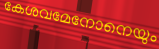
കേശവമേനോനെയും